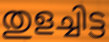
തുളച്ചിട്ട